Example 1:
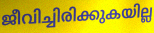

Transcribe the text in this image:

ജീവിച്ചിരിക്കുകയില്ല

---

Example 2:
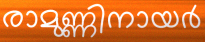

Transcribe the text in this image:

രാമുണ്ണിനായർ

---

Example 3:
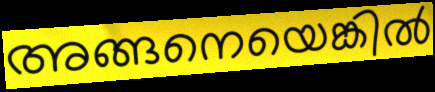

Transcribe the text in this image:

അങ്ങനെയെങ്കിൽ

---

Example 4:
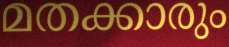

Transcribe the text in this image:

മതക്കാരും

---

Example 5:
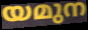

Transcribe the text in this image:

യമുന